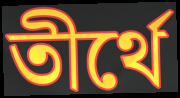
তীর্থে